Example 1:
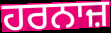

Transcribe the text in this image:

ਹਰਨਾਜ਼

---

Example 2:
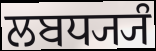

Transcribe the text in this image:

ਲਬਧ੍ਯ੍ਯੰ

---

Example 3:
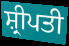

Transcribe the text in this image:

ਸ਼੍ਰੀਪਤੀ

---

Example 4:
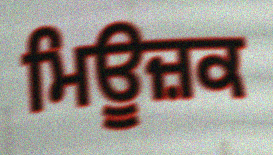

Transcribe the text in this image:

ਮਿਊਜ਼ਕ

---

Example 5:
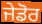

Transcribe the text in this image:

ਜੇਡੋਰ